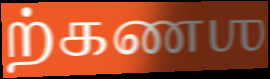
ற்கணஶ